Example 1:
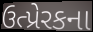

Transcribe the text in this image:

ઉત્પ્રેરકના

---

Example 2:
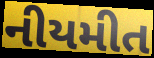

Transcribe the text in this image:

નીયમીત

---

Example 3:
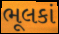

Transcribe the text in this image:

ભૂલકાં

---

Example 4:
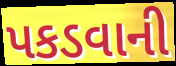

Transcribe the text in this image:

પકડવાની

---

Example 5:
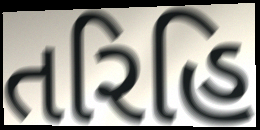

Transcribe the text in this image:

તરિહિ